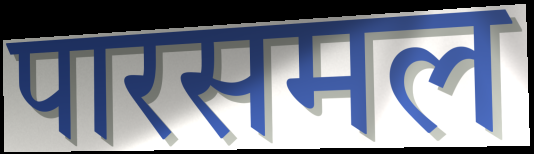
पारसमल